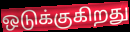
ஒடுக்குகிறது